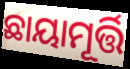
ଛାୟାମୂର୍ତ୍ତି